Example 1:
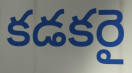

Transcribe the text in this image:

కడకరై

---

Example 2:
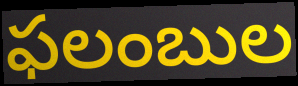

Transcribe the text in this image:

ఫలంబుల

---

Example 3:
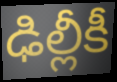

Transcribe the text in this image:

ఢిల్లీకీ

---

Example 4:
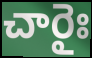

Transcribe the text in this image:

చారైః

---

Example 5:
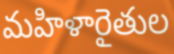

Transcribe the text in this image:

మహిళారైతుల